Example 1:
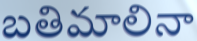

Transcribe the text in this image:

బతిమాలినా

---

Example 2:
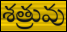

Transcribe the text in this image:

శత్రువు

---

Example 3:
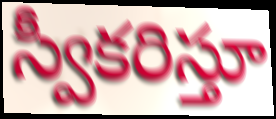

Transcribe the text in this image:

స్వీకరిస్తూ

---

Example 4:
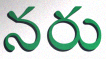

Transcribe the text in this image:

నరు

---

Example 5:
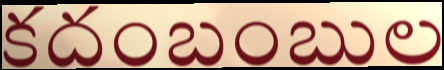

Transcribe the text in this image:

కదంబంబుల